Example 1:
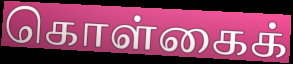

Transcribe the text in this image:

கொள்கைக்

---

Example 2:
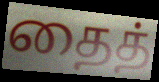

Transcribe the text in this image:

தைத்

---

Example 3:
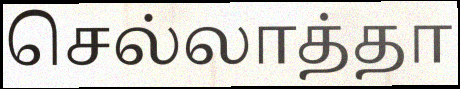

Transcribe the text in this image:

செல்லாத்தா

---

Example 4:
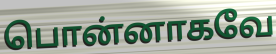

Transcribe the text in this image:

பொன்னாகவே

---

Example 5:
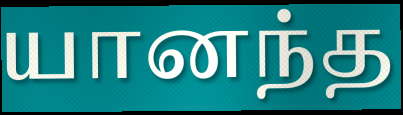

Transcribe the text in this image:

யானந்த